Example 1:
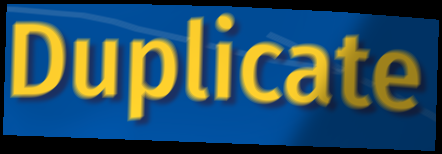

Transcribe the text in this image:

Duplicate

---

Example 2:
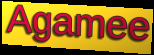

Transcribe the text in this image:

Agamee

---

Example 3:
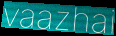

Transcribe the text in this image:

vaazhai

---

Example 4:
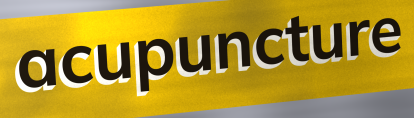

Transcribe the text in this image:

acupuncture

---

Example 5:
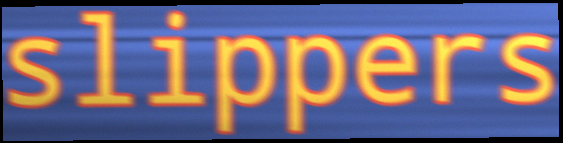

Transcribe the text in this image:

slippers